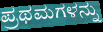
ಪ್ರಥಮಗಳನ್ನು